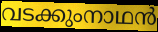
വടക്കുംനാഥൻ